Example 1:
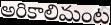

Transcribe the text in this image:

అరికాలిమంట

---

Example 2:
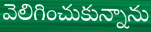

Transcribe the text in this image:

వెలిగించుకున్నాను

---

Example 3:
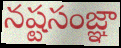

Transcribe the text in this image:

నష్టసంజ్ఞా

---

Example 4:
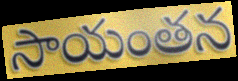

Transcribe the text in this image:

సాయంతన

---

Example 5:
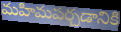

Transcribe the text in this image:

మహిమపర్చడానికి